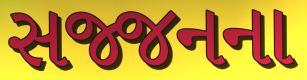
સજ્જનના